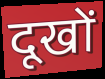
दूखों